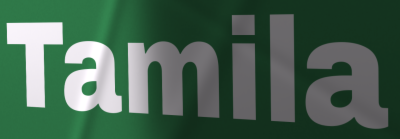
Tamila